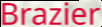
Brazier